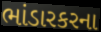
ભાંડારકરના